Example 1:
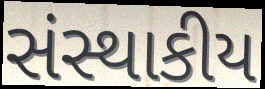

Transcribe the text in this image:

સંસ્થાકીય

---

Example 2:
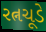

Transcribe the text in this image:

રત્નચૂડે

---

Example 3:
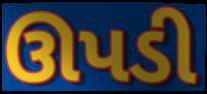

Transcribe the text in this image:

ઊપડી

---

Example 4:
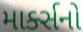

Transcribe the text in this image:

માર્ક્સનો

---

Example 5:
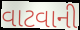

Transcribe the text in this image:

વાટવાની